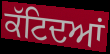
ਕੱਟਿਦਆਂ